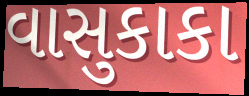
વાસુકાકા